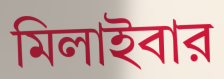
মিলাইবার